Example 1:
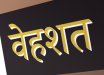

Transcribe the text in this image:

वेहशत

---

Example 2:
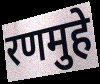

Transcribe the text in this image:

रणमुहे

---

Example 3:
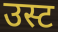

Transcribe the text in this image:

उस्ट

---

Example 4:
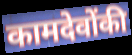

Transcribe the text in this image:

कामदेवोंकी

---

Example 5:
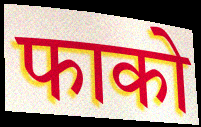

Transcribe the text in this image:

फाको